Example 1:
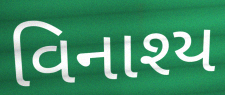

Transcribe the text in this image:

વિનાશ્ય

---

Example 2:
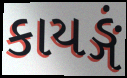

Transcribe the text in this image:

કાયઙ્ગં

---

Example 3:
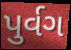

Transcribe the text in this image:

પુર્વગ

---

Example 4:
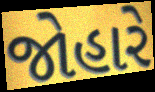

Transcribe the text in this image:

જોહારે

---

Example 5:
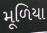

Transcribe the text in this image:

મૂળિયા